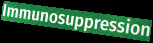
Immunosuppression